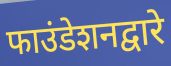
फाउंडेशनद्वारे